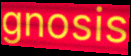
gnosis